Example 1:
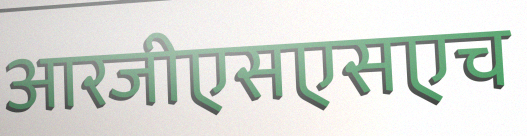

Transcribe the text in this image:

आरजीएसएसएच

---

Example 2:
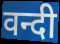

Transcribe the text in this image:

वन्दी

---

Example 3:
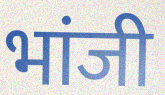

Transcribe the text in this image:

भांजी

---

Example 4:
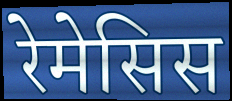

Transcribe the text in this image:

रेमेसिस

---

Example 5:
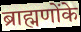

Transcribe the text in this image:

ब्राह्मणोंके